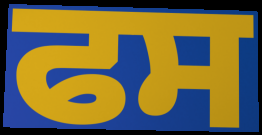
ਫਸ